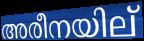
അരീനയില്